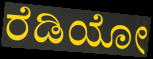
ರೆಡಿಯೋ